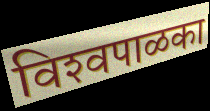
विश्वपाळका